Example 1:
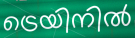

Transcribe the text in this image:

ട്രെയിനിൽ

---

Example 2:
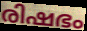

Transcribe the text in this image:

രിഷഭം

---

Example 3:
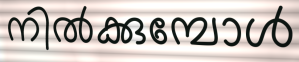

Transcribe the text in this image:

നിൽക്കുമ്പോൾ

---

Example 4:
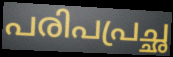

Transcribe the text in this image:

പരിപപ്രച്ഛ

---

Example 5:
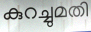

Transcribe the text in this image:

കുറച്ചുമതി